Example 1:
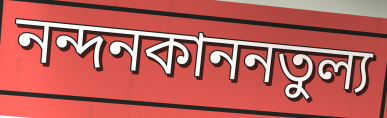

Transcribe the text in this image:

নন্দনকাননতুল্য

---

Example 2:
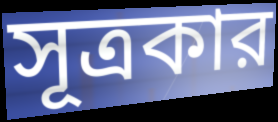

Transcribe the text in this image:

সূত্রকার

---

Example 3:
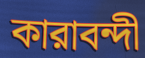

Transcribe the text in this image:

কারাবন্দী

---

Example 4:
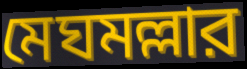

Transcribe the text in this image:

মেঘমল্লার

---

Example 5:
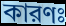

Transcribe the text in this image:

কারণঃ